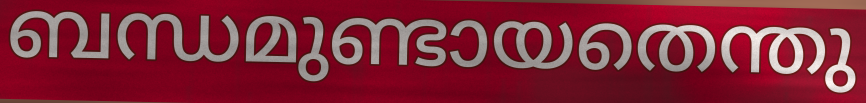
ബന്ധമുണ്ടായതെന്തു